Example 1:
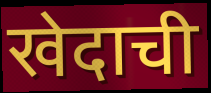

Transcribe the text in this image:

खेदाची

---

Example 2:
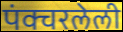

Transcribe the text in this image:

पंक्चरलेली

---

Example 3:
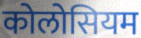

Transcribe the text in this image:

कोलोसियम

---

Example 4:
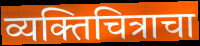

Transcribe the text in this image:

व्यक्तिचित्राचा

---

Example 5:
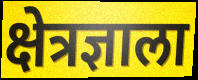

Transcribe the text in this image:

क्षेत्रज्ञाला